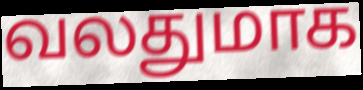
வலதுமாக